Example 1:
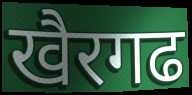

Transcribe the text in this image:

खैरगढ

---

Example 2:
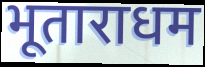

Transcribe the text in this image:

भूताराधम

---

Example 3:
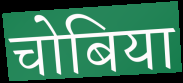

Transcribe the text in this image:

चोबिया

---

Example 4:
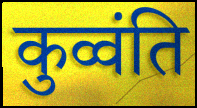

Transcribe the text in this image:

कुव्वंति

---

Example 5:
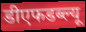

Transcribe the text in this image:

डीएफडब्ल्यू